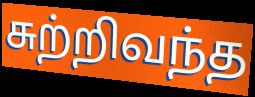
சுற்றிவந்த